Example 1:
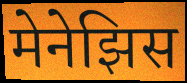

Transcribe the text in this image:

मेनेझिस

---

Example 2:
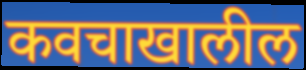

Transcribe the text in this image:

कवचाखालील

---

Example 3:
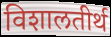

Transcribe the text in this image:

विशालतीर्थ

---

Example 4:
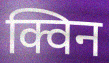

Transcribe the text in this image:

क्विन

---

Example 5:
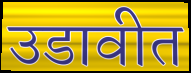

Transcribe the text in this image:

उडावीत